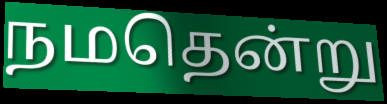
நமதென்று